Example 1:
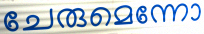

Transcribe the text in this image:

ചേരുമെന്നോ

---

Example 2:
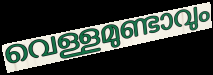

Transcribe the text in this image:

വെള്ളമുണ്ടാവും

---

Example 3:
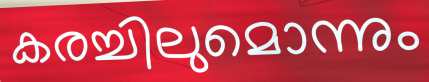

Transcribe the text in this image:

കരച്ചിലുമൊന്നും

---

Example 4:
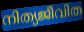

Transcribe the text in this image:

നിത്യജീവിത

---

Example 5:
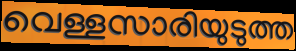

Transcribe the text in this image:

വെള്ളസാരിയുടുത്ത